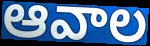
ఆవాల